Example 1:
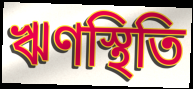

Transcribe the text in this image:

ঋণস্থিতি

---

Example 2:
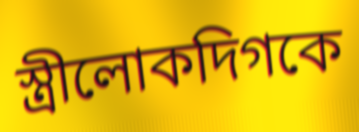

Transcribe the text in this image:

স্ত্রীলোকদিগকে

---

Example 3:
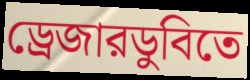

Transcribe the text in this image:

ড্রেজারডুবিতে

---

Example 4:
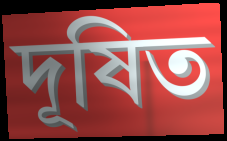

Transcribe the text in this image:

দূষিত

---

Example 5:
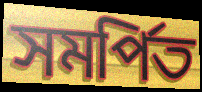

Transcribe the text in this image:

সমর্পিত